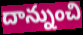
దాన్నుంచి